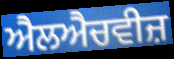
ਐਲਐਚਵੀਜ਼